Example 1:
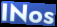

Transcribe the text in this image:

INos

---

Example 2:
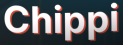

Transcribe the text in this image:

Chippi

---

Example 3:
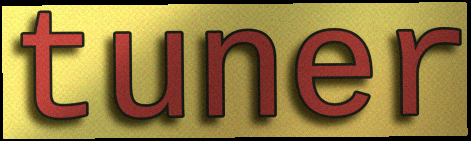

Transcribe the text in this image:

tuner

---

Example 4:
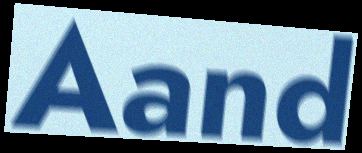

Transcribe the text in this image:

Aand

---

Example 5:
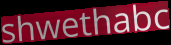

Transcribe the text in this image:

shwethabc